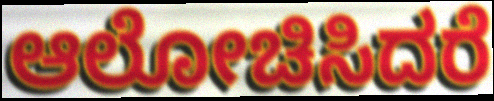
ಆಲೋಚಿಸಿದರೆ